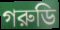
গরুডি